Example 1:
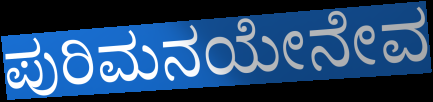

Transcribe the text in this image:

ಪುರಿಮನಯೇನೇವ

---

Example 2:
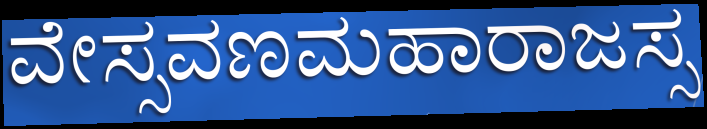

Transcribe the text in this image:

ವೇಸ್ಸವಣಮಹಾರಾಜಸ್ಸ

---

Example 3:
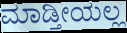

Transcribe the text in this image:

ಮಾಡ್ತೀಯಲ್ಲ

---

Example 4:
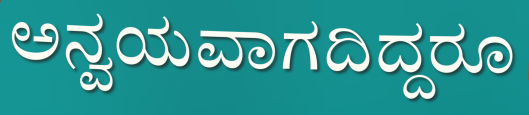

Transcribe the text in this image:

ಅನ್ವಯವಾಗದಿದ್ದರೂ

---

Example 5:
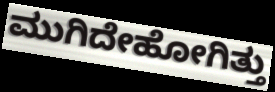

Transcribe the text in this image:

ಮುಗಿದೇಹೋಗಿತ್ತು